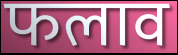
फलाव